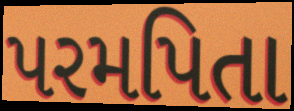
પરમપિતા